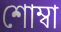
শোম্বা